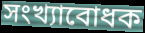
সংখ্যাবোধক